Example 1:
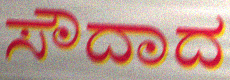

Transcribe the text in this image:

ಸೌದಾದ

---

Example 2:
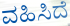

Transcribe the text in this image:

ವಹಿಸಿದೆ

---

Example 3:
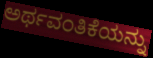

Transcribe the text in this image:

ಅರ್ಥವಂತಿಕೆಯನ್ನು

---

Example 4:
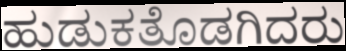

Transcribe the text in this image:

ಹುಡುಕತೊಡಗಿದರು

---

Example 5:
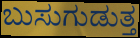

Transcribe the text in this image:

ಬುಸುಗುಡುತ್ತ